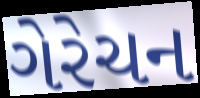
ગેરેચન